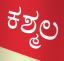
ಕಶ್ಮಲ